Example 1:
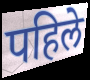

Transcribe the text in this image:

पहिले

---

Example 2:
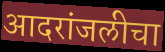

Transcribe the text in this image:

आदरांजलीचा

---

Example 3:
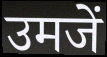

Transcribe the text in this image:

उमजें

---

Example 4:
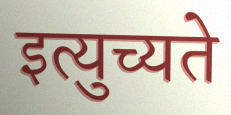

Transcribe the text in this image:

इत्युच्यते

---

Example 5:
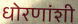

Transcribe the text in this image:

धोरणांशी